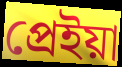
প্রেইয়া